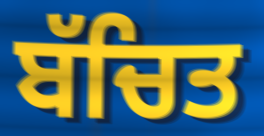
ਬੱਚਿਤ